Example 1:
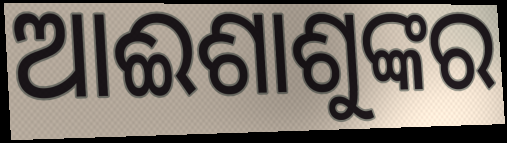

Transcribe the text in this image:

ଆଈଶାଶୁଙ୍କର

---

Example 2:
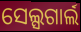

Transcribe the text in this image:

ସେଲ୍ସଗାର୍ଲ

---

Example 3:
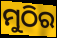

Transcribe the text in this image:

ମୁଠିର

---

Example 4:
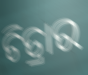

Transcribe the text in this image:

ଚିତ୍ରାର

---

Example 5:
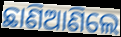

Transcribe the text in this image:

ଛାଣିଆଣିଲେ